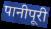
पानीपूरी